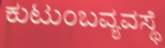
ಕುಟುಂಬವ್ಯವಸ್ಥೆ